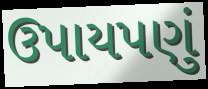
ઉપાયપણું